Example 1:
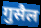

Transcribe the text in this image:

गुसैल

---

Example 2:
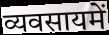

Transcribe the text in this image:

व्यवसायमें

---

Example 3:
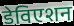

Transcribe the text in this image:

डेविएशन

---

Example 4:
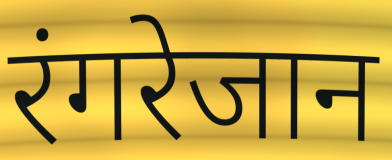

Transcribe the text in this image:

रंगरेजान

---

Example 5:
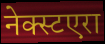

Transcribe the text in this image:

नेक्स्टएरा